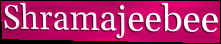
Shramajeebee